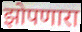
झोपणारा